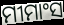
ମୀମାଂସ